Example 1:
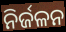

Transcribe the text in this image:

ନିର୍ଜଳନ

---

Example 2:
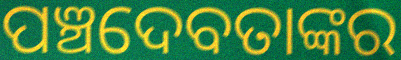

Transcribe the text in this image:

ପଞ୍ଚଦେବତାଙ୍କର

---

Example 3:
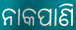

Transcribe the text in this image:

ନାକପାଣି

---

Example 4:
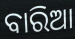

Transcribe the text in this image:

ବାରିଆ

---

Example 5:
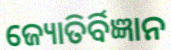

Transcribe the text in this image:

ଜ୍ୟୋତିର୍ବିଜ୍ଞାନ